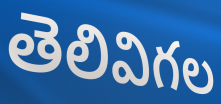
తెలివిగల